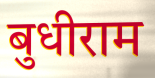
बुधीराम